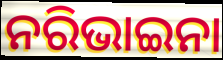
ନରିଭାଇନା